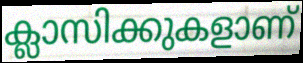
ക്ലാസിക്കുകളാണ്